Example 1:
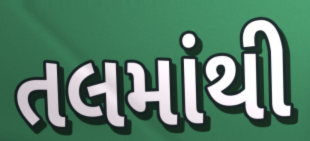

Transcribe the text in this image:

તલમાંથી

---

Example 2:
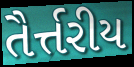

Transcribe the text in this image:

તૈર્ત્તરીય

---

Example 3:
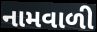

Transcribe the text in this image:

નામવાળી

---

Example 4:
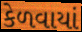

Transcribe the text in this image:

કેળવાયાં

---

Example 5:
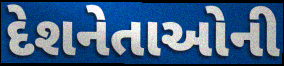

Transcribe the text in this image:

દેશનેતાઓની